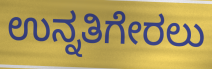
ಉನ್ನತಿಗೇರಲು